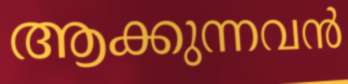
ആക്കുന്നവൻ